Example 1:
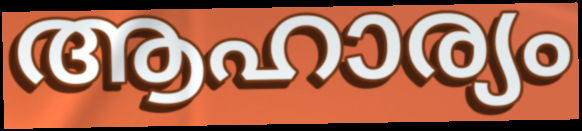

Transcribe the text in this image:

ആഹാര്യം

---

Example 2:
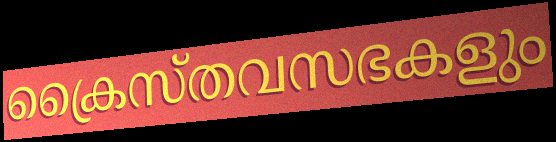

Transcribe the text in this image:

ക്രൈസ്തവസഭകളും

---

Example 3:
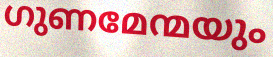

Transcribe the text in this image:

ഗുണമേന്മയും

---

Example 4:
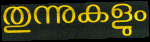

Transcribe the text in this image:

തുന്നുകളും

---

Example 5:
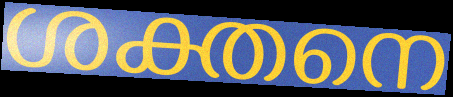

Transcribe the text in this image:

ശക്തനെ